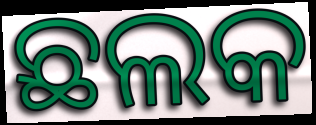
ଛଲକ